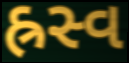
હ્રસ્વ